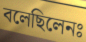
বলেছিলেনঃ